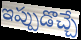
ఇప్పుడొచ్చే